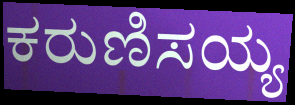
ಕರುಣಿಸಯ್ಯ